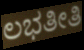
ಲಭತೀತಿ